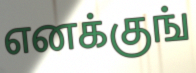
எனக்குங்